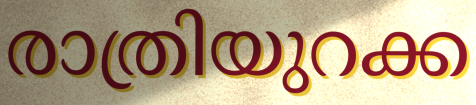
രാത്രിയുറക്ക